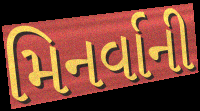
મિનર્વાની